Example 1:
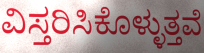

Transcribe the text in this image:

ವಿಸ್ತರಿಸಿಕೊಳ್ಳುತ್ತವೆ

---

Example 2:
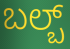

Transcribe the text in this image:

ಬಲ್ಬ್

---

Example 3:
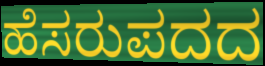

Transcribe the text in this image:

ಹೆಸರುಪದದ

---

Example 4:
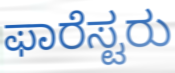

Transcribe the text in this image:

ಫಾರೆಸ್ಟರು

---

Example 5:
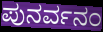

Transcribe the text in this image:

ಪುನರ್ವನಂ